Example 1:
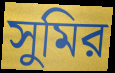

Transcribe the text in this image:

সুমির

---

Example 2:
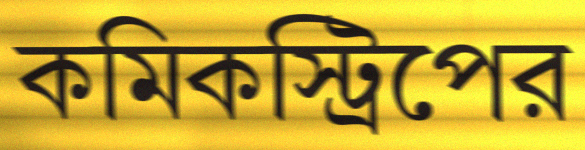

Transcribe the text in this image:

কমিকস্ট্রিপের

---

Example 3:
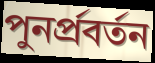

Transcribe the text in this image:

পুনর্প্রবর্তন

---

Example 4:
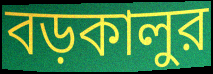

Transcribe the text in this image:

বড়কালুর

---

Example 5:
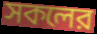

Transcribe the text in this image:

সকলের